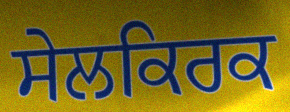
ਸੇਲਕਿਰਕ